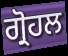
ਗ੍ਰੋਹਲ